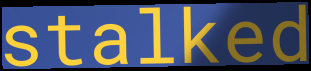
stalked